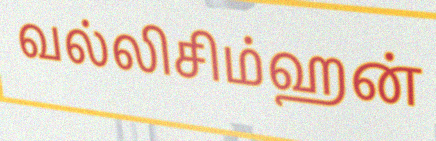
வல்லிசிம்ஹன்